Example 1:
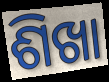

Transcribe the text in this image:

ଶିଖା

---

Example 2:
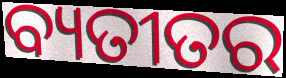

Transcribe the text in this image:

ବ୍ୟତୀତର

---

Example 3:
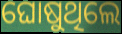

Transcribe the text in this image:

ଘୋଷୁଥିଲେ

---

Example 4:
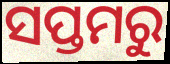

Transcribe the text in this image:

ସପ୍ତମରୁ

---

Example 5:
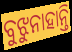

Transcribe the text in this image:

ବୁଝୁନାହାନ୍ତି